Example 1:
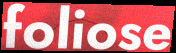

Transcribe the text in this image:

foliose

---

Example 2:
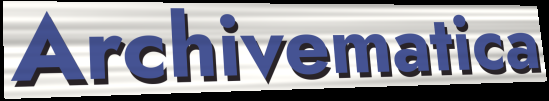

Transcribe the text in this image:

Archivematica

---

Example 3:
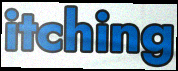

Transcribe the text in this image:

itching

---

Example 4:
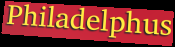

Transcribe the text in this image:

Philadelphus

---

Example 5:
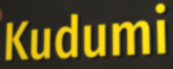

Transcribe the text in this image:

Kudumi